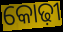
କୋଢ଼ୀ